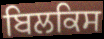
ਬਿਲਕਿਸ